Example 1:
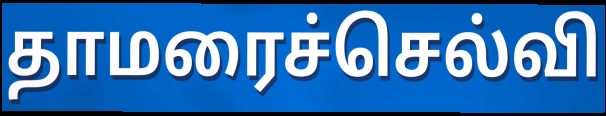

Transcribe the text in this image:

தாமரைச்செல்வி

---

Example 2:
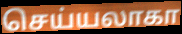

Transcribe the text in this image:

செய்யலாகா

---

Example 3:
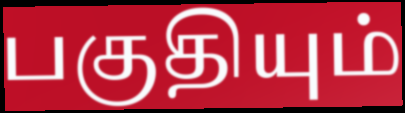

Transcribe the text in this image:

பகுதியும்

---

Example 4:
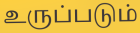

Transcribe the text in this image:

உருப்படும்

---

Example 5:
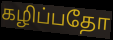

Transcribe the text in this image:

கழிப்பதோ